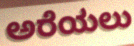
ಅರೆಯಲು